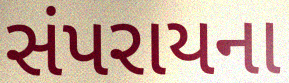
સંપરાયના